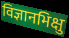
विज्ञानभिक्षु